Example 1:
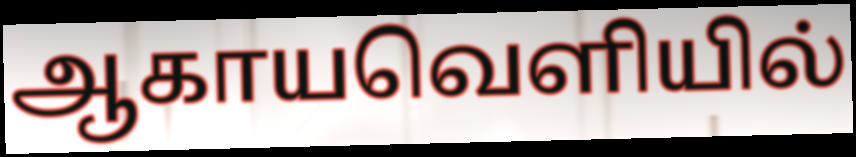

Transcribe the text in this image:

ஆகாயவெளியில்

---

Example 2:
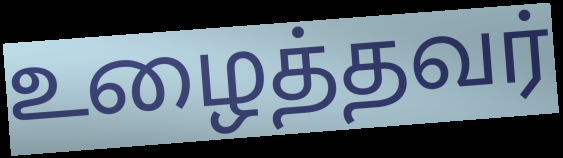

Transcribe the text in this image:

உழைத்தவர்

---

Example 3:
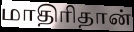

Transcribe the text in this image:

மாதிரிதான்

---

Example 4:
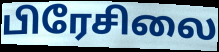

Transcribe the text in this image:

பிரேசிலை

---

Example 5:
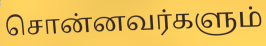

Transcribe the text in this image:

சொன்னவர்களும்